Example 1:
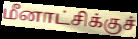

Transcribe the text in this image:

மீனாட்சிக்குச்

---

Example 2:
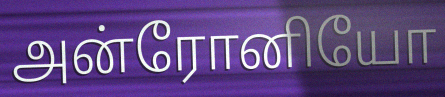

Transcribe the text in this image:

அன்ரோனியோ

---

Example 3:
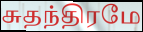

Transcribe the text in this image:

சுதந்திரமே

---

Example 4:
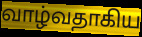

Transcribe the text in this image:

வாழ்வதாகிய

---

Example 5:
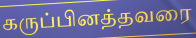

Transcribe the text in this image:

கருப்பினத்தவரை